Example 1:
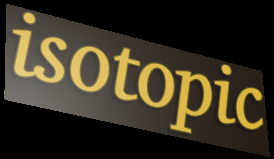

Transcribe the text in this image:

isotopic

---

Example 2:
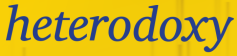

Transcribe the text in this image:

heterodoxy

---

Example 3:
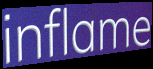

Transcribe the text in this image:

inflame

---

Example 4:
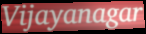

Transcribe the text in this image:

Vijayanagar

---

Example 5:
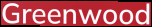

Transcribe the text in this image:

Greenwood